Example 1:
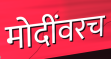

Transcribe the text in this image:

मोदींवरच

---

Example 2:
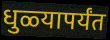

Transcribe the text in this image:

धुळ्यापर्यंत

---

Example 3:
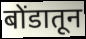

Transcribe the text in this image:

बोंडातून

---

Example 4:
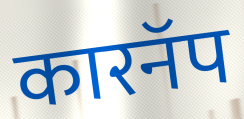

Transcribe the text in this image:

कारनॅप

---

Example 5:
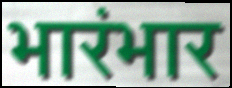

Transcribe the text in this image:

भारंभार